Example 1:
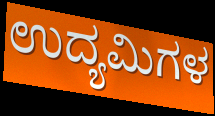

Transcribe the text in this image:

ಉದ್ಯಮಿಗಳ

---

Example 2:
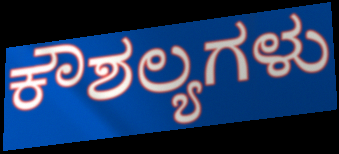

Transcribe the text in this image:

ಕೌಶಲ್ಯಗಳು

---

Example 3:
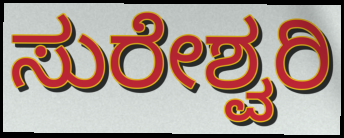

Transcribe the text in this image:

ಸುರೇಶ್ವರಿ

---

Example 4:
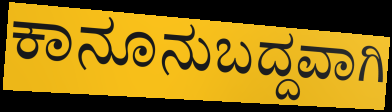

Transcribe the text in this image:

ಕಾನೂನುಬದ್ದವಾಗಿ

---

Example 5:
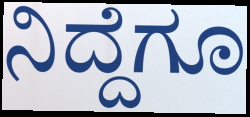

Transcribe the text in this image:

ನಿದ್ದೆಗೂ